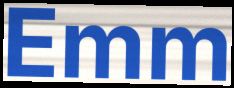
Emm